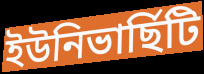
ইউনিভাৰ্ছিটি